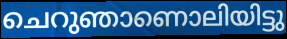
ചെറുഞാണൊലിയിട്ടു